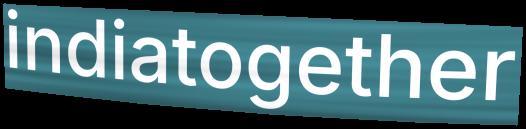
indiatogether